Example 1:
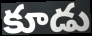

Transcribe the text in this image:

కూడు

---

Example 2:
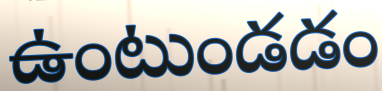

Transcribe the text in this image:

ఉంటుండడం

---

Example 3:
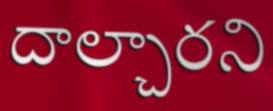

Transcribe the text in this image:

దాల్చారని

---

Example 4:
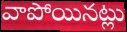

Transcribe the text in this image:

వాపోయినట్లు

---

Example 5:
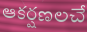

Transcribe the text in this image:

ఆకర్షణలచే